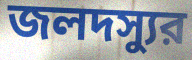
জলদস্যুর